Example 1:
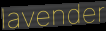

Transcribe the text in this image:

lavender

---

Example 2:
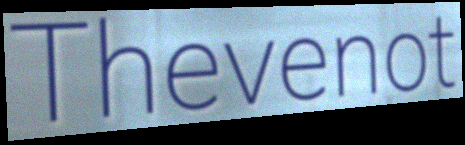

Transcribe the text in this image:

Thevenot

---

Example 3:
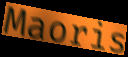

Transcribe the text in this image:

Maoris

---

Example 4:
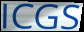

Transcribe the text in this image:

ICGS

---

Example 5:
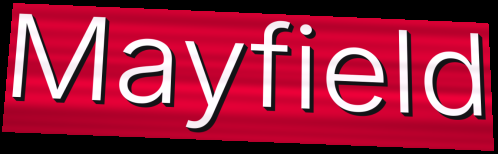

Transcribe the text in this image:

Mayfield